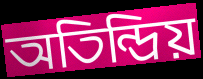
অতিন্দ্রিয়